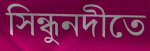
সিন্ধুনদীতে